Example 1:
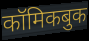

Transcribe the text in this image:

कॉमिकबुक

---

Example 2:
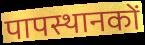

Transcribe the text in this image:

पापस्थानकों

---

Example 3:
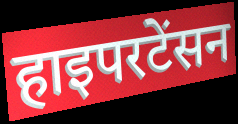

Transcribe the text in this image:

हाइपरटेंसन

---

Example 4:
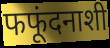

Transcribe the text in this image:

फफूंदनाशी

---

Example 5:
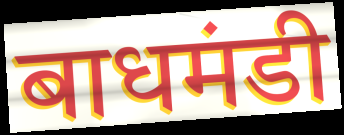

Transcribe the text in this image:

बाधमंडी